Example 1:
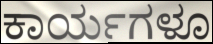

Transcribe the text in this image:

ಕಾರ್ಯಗಳೂ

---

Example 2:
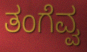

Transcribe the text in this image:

ತಂಗೆವ್ವ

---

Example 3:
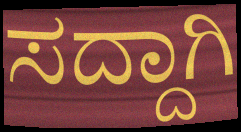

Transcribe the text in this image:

ಸದ್ದಾಗಿ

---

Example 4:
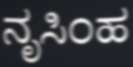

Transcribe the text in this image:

ನೃಸಿಂಹ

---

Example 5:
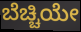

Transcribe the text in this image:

ಬೆಚ್ಚಿಯೇ